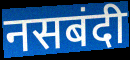
नसबंदी